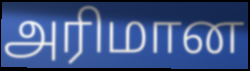
அரிமான